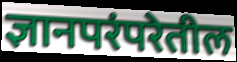
ज्ञानपरंपरेतील